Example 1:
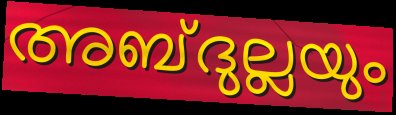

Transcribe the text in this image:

അബ്ദുല്ലയും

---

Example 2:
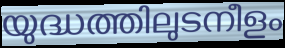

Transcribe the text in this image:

യുദ്ധത്തിലുടനീളം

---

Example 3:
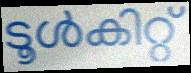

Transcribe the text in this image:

ടൂൾകിറ്റ്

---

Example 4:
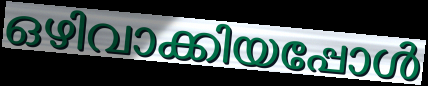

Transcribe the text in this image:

ഒഴിവാക്കിയപ്പോൾ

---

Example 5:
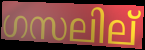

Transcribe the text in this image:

ഗസലില്